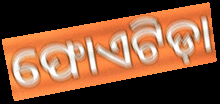
ଫୋଏଟିଡ଼ା